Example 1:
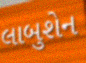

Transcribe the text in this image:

લાબુશેન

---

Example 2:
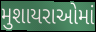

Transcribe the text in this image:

મુશાયરાઓમાં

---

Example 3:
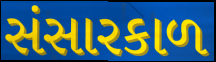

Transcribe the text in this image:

સંસારકાળ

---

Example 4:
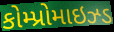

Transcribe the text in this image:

કોમ્પ્રોમાઇઝ્ડ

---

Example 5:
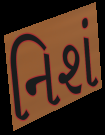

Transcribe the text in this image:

નિશં